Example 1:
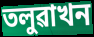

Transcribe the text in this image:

তলুৱাখন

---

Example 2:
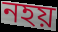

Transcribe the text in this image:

নহয়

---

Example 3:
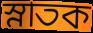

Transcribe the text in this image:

স্নাতক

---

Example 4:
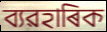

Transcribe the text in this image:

ব্যৱহাৰিক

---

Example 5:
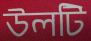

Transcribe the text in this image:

উলটি